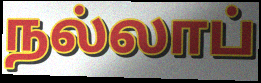
நல்லாப்